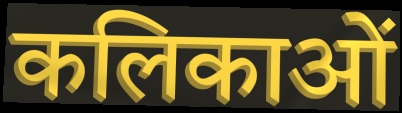
कलिकाओं